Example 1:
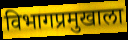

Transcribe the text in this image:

विभागप्रमुखाला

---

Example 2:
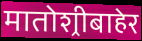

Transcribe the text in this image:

मातोश्रीबाहेर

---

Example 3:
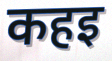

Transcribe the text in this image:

कहइ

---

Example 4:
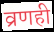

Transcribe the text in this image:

व्रणही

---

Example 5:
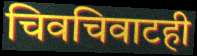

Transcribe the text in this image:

चिवचिवाटही